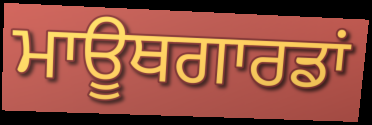
ਮਾਊਥਗਾਰਡਾਂ